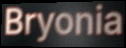
Bryonia